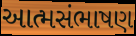
આત્મસંભાષણ